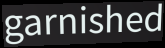
garnished